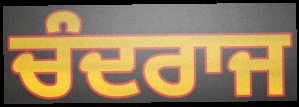
ਚੰਦਰਾਜ